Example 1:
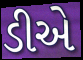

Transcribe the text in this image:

ડીએ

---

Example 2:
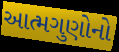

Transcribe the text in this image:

આત્મગુણોનો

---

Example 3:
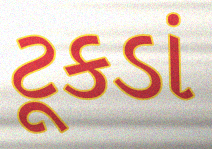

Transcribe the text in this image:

ટૂકડાં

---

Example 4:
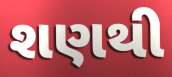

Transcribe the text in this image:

શણથી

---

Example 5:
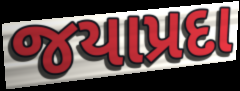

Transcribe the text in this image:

જયાપ્રદા